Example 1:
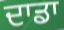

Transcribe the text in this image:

ਦਾਡਾ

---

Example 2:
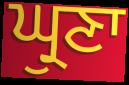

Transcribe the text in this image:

ਘ੍ਰੁਣਾ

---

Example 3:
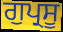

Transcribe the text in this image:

ਗੁਪ੍ਰਸੂ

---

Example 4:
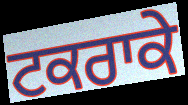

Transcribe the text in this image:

ਟਕਰਾਕੇ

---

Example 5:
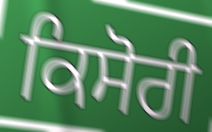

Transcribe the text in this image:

ਕਿਸੋਰੀ